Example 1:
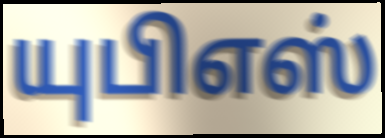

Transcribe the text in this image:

யுபிஎஸ்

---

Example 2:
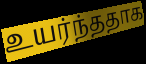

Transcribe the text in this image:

உயர்ந்ததாக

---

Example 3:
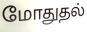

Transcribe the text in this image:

மோதுதல்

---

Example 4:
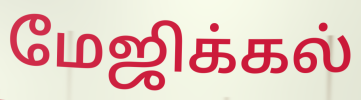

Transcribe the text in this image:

மேஜிக்கல்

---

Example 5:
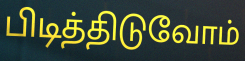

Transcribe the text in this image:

பிடித்திடுவோம்